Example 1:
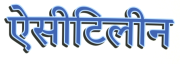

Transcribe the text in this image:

ऐसीटिलीन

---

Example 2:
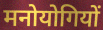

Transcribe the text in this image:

मनोयोगियों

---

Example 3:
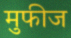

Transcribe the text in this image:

मुफीज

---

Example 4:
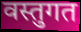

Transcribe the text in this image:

वस्तुगत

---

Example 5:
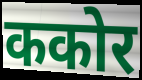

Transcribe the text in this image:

ककोर